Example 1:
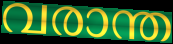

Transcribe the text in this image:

വരാന്ത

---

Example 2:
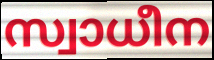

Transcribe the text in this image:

സ്വാധീന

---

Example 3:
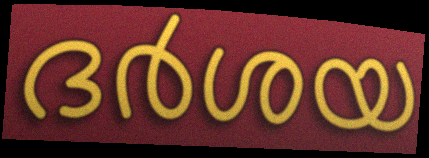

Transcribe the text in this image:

ദർശയ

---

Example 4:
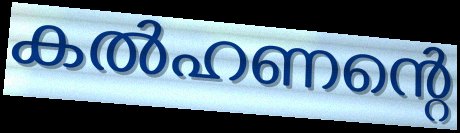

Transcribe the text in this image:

കൽഹണന്റെ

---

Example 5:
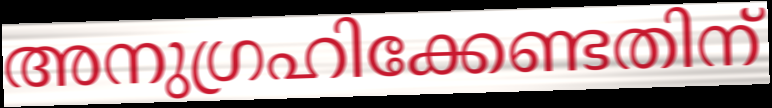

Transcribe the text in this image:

അനുഗ്രഹിക്കേണ്ടതിന്